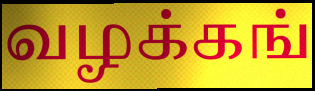
வழக்கங்